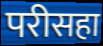
परीसहा